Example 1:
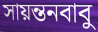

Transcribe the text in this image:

সায়ন্তনবাবু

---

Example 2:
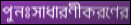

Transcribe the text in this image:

পুনঃসাধারণীকরণের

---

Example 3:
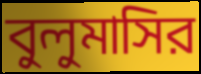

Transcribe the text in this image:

বুলুমাসির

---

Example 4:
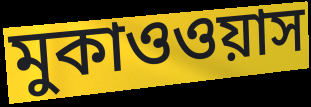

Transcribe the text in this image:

মুকাওওয়াস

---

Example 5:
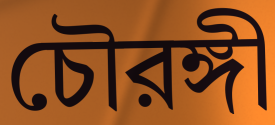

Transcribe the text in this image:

চৌরঙ্গী